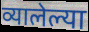
व्यालेल्या